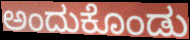
ಅಂದುಕೊಂಡು